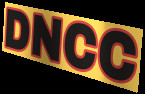
DNCC